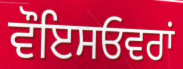
ਵੌਇਸਓਵਰਾਂ